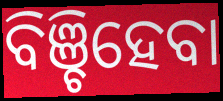
ବିଞ୍ଚିହେବା